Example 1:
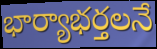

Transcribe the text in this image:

భార్యాభర్తలనే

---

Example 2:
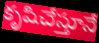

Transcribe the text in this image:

కృషిచేస్తూనే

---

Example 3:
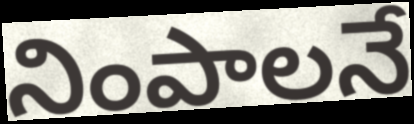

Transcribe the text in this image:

నింపాలనే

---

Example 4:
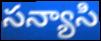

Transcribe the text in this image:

సన్యాసి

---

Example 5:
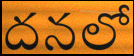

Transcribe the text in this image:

దనలో